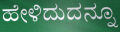
ಹೇಳಿದುದನ್ನೂ